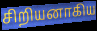
சிறியனாகிய